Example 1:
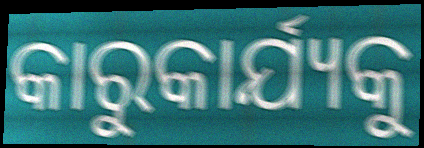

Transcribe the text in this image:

କାରୁକାର୍ଯ୍ୟକୁ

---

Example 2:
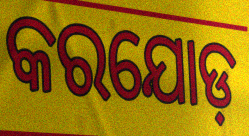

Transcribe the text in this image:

କରଯୋଡ଼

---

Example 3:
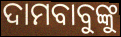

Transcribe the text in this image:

ଦାମବାବୁଙ୍କୁ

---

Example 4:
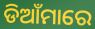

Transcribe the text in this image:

ଡିଆଁମାରେ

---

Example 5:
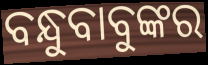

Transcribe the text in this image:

ବନ୍ଧୁବାବୁଙ୍କର